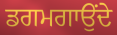
ਡਗਮਗਾਉਂਦੇ